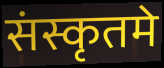
संस्कृतमे